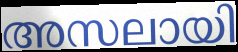
അസലായി